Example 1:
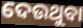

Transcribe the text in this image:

ଦେଉଥୁବା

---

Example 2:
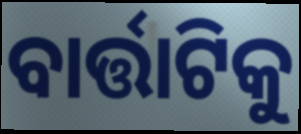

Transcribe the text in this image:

ବାର୍ତ୍ତାଟିକୁ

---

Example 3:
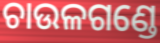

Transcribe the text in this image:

ଚାଉଳଗଣ୍ଡେ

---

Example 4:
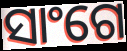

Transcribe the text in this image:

ସାଂଗେ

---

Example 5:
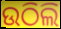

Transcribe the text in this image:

ଉଠିଲି